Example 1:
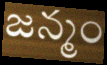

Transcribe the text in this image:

జన్మం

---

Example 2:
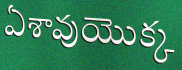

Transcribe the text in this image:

ఏశావుయొక్క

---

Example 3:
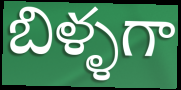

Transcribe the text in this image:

బిళ్ళగా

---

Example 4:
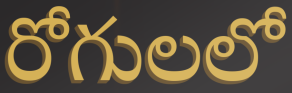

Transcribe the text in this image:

రోగులలో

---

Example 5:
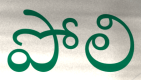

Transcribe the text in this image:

పోలి